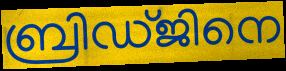
ബ്രിഡ്ജിനെ